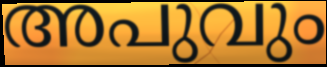
അപുവും